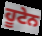
ਹੂਟੇਨ